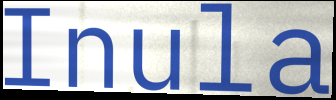
Inula